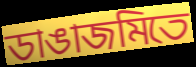
ডাঙাজমিতে